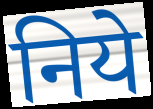
निये